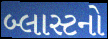
બ્લાસ્ટનો